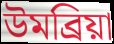
উমব্রিয়া